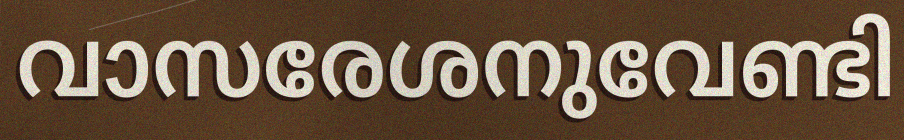
വാസരേശനുവേണ്ടി